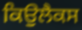
ਕਿਉਲੈਕਸ